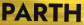
PARTH